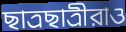
ছাত্রছাত্রীরাও